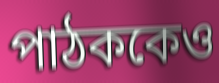
পাঠককেও